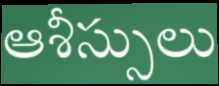
ఆశీస్సులు